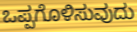
ಒಪ್ಪಗೊಳಿಸುವುದು